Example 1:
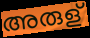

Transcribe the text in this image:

അരുള്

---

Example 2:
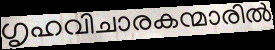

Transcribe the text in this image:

ഗൃഹവിചാരകന്മാരിൽ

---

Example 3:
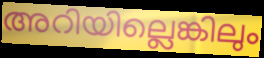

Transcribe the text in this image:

അറിയില്ലെങ്കിലും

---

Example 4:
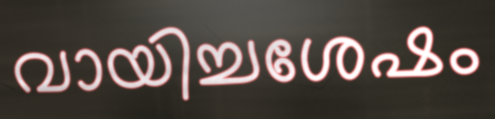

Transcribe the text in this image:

വായിച്ചശേഷം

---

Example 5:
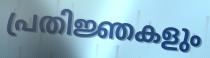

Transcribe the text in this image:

പ്രതിജ്ഞകളും